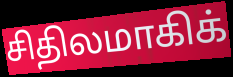
சிதிலமாகிக்